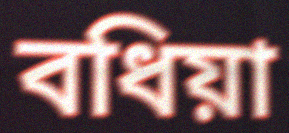
বধিয়া